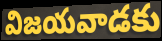
విజయవాడకు